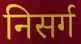
निसर्ग